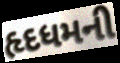
હૃદધમની